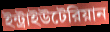
ইন্ট্রাইউটেরিয়ান